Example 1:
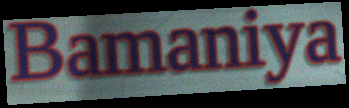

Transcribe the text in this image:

Bamaniya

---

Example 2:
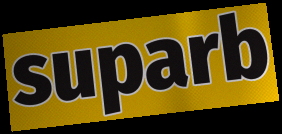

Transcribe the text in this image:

suparb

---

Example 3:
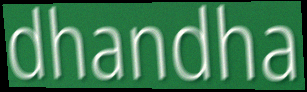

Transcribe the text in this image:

dhandha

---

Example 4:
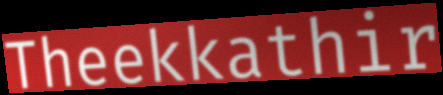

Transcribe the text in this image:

Theekkathir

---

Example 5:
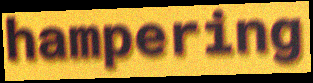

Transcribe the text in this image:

hampering